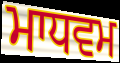
ਮਾਧਵਮ